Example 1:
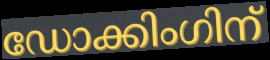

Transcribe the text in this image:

ഡോക്കിംഗിന്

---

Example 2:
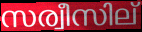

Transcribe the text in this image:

സര്വീസില്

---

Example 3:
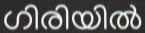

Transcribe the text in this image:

ഗിരിയിൽ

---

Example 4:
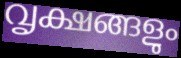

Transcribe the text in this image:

വൃക്ഷങ്ങളും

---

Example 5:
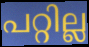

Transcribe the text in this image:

പറ്റില്ല